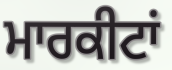
ਮਾਰਕੀਟਾਂ